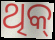
ଥିକ୍